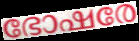
ഭോഷരേ